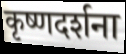
कृष्णदर्शना